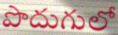
పొదుగులో